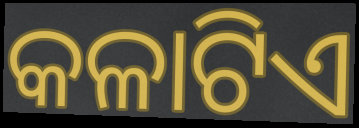
କଳାଟିଏ